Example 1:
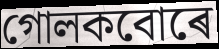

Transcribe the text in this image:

গোলকবোৰে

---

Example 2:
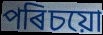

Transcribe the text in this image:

পৰিচয়ো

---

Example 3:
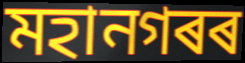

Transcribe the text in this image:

মহানগৰৰ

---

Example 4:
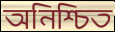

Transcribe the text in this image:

অনিশ্চিত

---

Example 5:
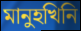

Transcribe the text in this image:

মানুহখিনি